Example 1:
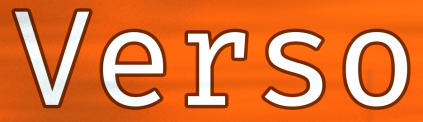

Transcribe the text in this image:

Verso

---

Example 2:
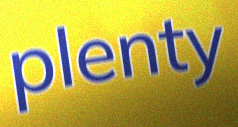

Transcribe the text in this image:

plenty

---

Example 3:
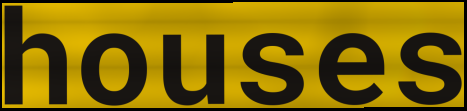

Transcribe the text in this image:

houses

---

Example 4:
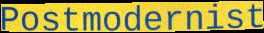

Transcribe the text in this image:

Postmodernist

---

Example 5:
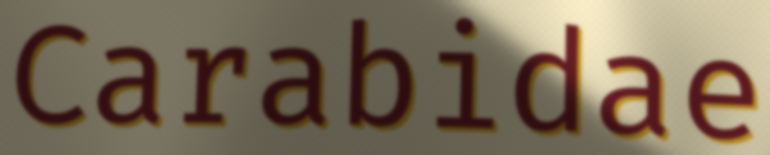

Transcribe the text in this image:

Carabidae